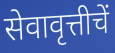
सेवावृत्तीचें